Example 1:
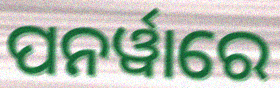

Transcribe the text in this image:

ପନର୍ୱାରେ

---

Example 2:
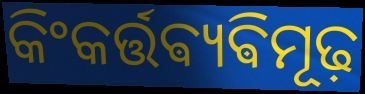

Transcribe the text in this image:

କିଂକର୍ତ୍ତଵ୍ଯଵିମୂଢ଼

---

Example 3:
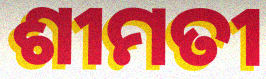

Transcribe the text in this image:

ଶୀମତୀ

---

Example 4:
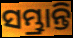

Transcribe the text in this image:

ସମ୍ଭ୍ରାନ୍ତି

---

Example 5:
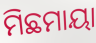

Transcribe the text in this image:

ମିଛମାୟା